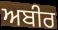
ਅਬੀਰ